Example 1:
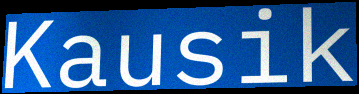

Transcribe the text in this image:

Kausik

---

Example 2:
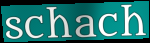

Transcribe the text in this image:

schach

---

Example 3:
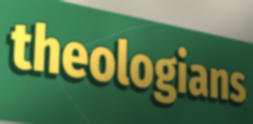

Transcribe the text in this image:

theologians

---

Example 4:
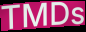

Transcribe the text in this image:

TMDs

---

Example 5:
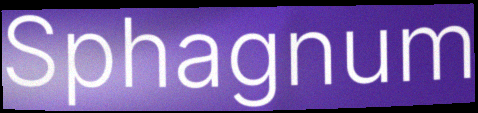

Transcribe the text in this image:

Sphagnum